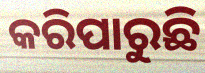
କରିପାରୁଛି